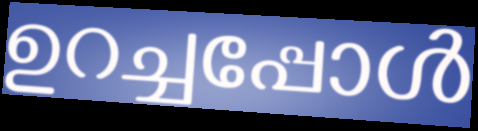
ഉറച്ചപ്പോൾ